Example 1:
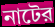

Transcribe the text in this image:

নাটের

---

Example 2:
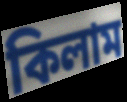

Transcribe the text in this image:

কিলাম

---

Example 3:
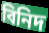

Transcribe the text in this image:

বিনিদ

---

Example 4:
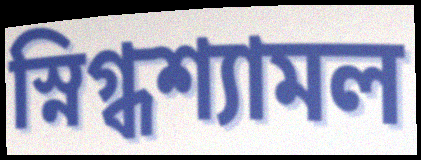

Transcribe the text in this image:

স্নিগ্ধশ্যামল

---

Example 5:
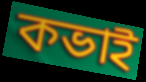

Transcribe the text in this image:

কভাই